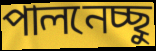
পালনেচ্ছু